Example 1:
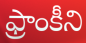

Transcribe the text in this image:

ఫ్రాంకీని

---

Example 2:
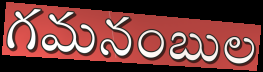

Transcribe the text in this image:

గమనంబుల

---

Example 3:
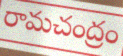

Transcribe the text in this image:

రామచంద్రం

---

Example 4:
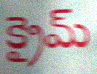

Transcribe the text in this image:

క్రైమ్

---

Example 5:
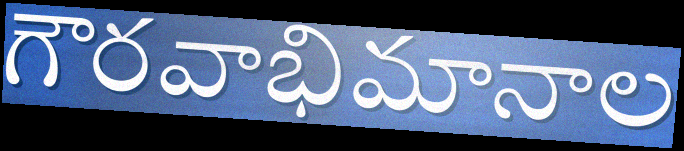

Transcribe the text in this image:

గౌరవాభిమానాల